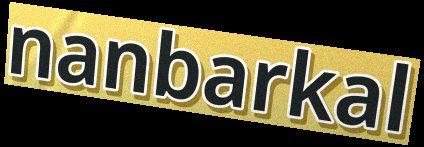
nanbarkal